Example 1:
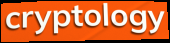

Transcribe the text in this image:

cryptology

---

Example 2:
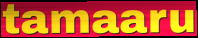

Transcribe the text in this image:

tamaaru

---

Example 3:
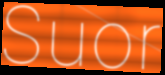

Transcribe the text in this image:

Suor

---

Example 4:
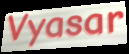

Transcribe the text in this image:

Vyasar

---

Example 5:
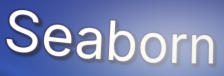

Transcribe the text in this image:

Seaborn